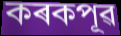
কৰকপূৱ